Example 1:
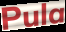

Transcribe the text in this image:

Pula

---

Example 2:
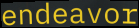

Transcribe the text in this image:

endeavor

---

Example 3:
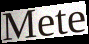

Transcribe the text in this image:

Mete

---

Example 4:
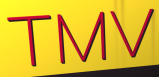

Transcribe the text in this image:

TMV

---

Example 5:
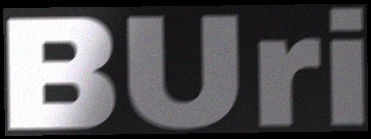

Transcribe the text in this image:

BUri